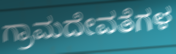
ಗ್ರಾಮದೇವತೆಗಳ